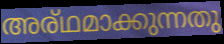
അര്ഥമാക്കുന്നതു